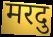
मरदु